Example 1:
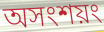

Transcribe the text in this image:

অসংশয়ং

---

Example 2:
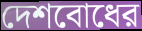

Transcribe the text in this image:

দেশবোধের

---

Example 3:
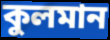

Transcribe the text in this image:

কুলমান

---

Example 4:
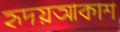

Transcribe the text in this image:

হৃদয়আকাশ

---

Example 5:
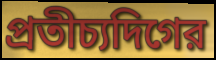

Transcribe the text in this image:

প্রতীচ্যদিগের